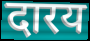
दारय